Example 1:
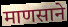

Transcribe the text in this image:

माणसाने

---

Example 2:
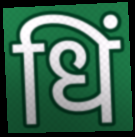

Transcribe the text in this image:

धिं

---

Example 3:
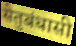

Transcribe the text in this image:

सेतुबंधासी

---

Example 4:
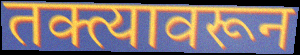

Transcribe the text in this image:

तक्त्यावरून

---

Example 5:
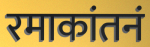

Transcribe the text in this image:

रमाकांतनं